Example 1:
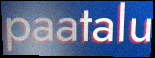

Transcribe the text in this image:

paatalu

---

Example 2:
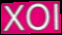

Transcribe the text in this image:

XOI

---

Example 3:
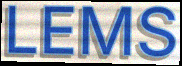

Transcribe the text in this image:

LEMS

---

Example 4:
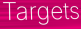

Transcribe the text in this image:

Targets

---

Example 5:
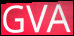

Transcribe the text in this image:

GVA